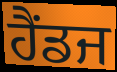
ਹੈਂਡਜ